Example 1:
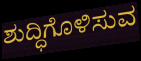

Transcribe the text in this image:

ಶುದ್ಧಿಗೊಳಿಸುವ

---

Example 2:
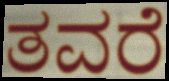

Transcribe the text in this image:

ತವರೆ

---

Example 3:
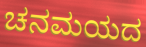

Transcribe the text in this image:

ಚನಮಯದ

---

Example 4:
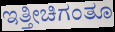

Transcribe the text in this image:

ಇತ್ತೀಚಿಗಂತೂ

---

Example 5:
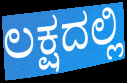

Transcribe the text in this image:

ಲಕ್ಷದಲ್ಲಿ